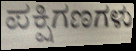
ಪಕ್ಷಿಗಣಗಳು